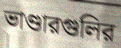
ভাণ্ডারগুলির